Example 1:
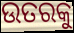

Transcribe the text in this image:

ଉତରକୁ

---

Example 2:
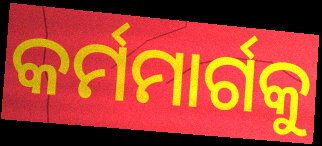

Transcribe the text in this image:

କର୍ମମାର୍ଗକୁ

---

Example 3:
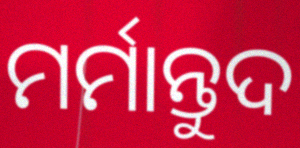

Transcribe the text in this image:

ମର୍ମାନ୍ତୁଦ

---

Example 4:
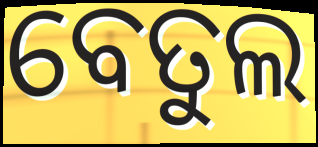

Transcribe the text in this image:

ବେତୁଲ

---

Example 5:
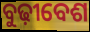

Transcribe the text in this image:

ବୁଢ଼ୀବେଶ